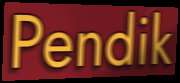
Pendik